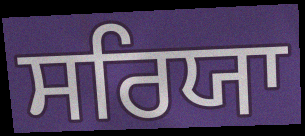
ਸਰਿਯਾ